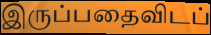
இருப்பதைவிடப்